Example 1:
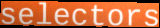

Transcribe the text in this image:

selectors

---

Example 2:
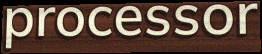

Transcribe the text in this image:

processor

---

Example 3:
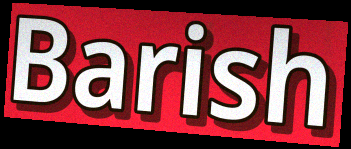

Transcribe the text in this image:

Barish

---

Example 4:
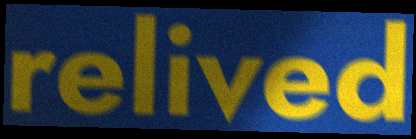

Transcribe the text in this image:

relived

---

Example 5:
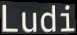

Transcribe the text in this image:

Ludi